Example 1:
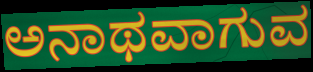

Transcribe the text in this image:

ಅನಾಥವಾಗುವ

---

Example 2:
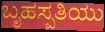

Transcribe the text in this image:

ಬೃಹಸ್ಪತಿಯು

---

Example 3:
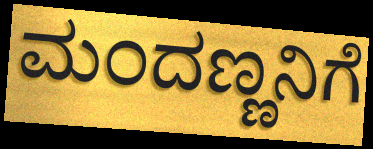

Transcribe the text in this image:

ಮಂದಣ್ಣನಿಗೆ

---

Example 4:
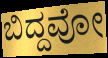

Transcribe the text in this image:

ಬಿದ್ದವೋ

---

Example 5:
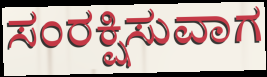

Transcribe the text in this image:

ಸಂರಕ್ಷಿಸುವಾಗ